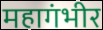
महागंभीर